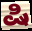
ಷಿ